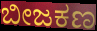
ಬೀಜಕಣ